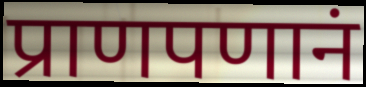
प्राणपणानं